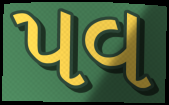
પવ